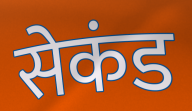
सेकंड